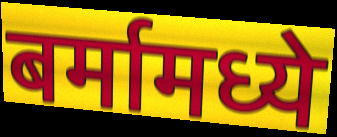
बर्मामध्ये